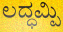
ಲದ್ಧಮ್ಪಿ